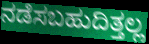
ನಡೆಸಬಹುದಿತ್ತಲ್ಲ